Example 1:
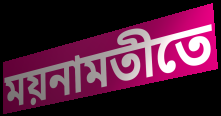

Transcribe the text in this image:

ময়নামতীতে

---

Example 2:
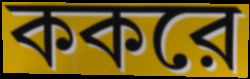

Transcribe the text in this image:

ককরে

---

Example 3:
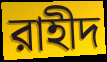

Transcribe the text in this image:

রাহীদ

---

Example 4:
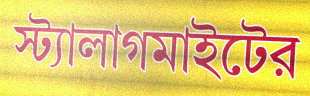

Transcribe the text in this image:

স্ট্যালাগমাইটের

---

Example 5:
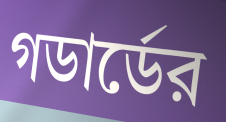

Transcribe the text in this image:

গডার্ডের